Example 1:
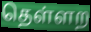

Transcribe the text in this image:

தெள்ளற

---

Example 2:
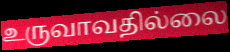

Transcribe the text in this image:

உருவாவதில்லை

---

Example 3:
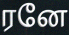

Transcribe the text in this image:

ரனே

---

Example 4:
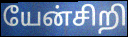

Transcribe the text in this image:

யேன்சிறி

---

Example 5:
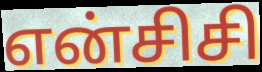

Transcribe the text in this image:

என்சிசி